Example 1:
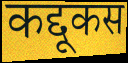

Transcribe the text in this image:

कद्दूकस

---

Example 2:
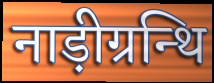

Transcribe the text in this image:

नाड़ीग्रन्थि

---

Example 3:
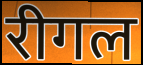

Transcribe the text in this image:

रीगल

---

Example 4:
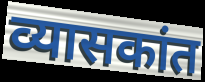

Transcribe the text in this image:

व्यासकांत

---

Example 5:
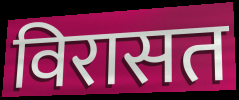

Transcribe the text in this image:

विरासत